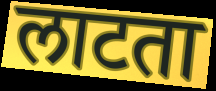
लाटता